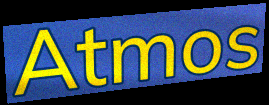
Atmos